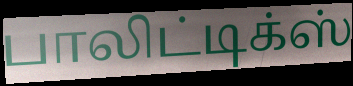
பாலிட்டிக்ஸ்